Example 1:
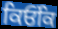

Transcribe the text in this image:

ਕਿਓਂਕਿ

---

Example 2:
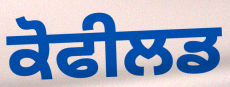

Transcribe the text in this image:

ਕੋਫੀਲਡ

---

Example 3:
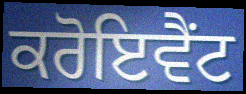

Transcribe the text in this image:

ਕਰੋਇਵੈਂਟ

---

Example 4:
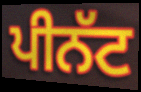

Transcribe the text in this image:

ਪੀਨੱਟ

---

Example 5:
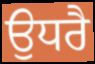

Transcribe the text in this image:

ਉਧਰੈ